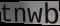
tnwb